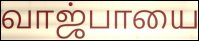
வாஜ்பாயை